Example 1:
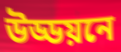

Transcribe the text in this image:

উড্ডয়নে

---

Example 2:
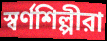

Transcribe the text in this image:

স্বর্ণশিল্পীরা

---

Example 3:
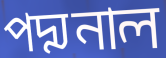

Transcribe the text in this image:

পদ্মনাল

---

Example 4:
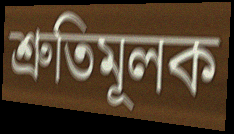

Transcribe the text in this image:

শ্রুতিমূলক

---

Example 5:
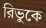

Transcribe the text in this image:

রিভুকে